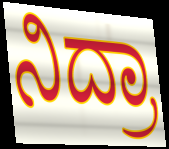
ನಿದ್ರಾ